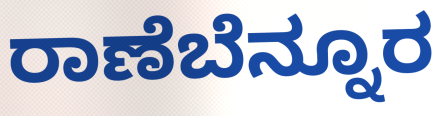
ರಾಣೆಬೆನ್ನೂರ